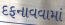
દફનાવવામાં